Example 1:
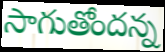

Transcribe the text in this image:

సాగుతోందన్న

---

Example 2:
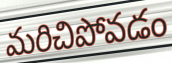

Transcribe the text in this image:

మరిచిపోవడం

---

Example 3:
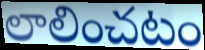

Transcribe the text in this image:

లాలించటం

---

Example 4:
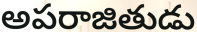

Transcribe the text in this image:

అపరాజితుడు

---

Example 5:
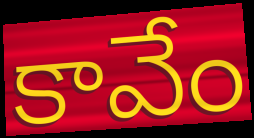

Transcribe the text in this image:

కావేం